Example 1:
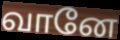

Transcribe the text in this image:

வானே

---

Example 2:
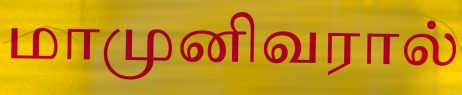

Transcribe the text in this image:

மாமுனிவரால்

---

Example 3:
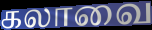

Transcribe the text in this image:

கலாவை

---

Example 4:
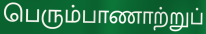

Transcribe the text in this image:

பெரும்பாணாற்றுப்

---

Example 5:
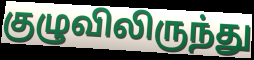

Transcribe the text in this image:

குழுவிலிருந்து